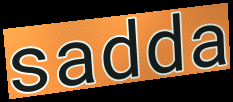
sadda